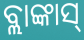
ବ୍ଲାଙ୍କାସ୍